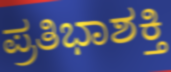
ಪ್ರತಿಭಾಶಕ್ತಿ